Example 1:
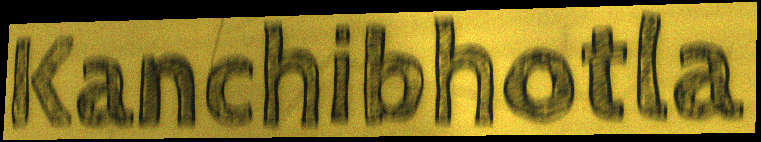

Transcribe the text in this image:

Kanchibhotla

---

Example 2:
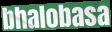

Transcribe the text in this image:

bhalobasa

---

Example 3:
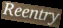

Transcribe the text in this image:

Reentry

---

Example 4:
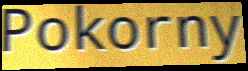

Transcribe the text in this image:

Pokorny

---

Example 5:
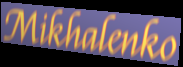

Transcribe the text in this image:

Mikhalenko